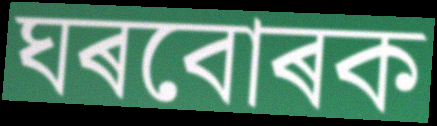
ঘৰবোৰক